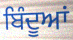
ਬਿੰਦੂਆਂ